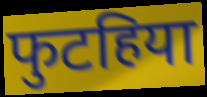
फुटहिया